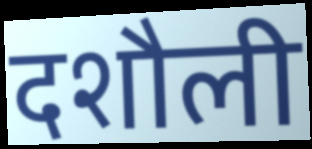
दशौली